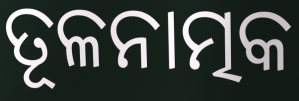
ତୂଳନାତ୍ମକ